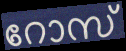
റോസ്